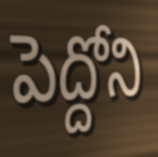
పెద్దోని